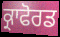
ਕ੍ਰਾਫੋਰਡ